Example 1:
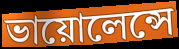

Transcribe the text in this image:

ভায়োলেন্সে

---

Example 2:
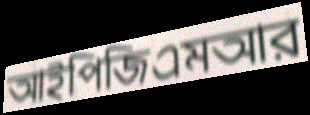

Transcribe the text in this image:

আইপিজিএমআর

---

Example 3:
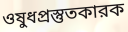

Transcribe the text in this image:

ওষুধপ্রস্তুতকারক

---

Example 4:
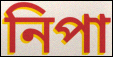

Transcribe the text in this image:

নিপা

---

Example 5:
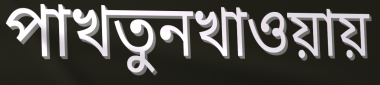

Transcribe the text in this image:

পাখতুনখাওয়ায়